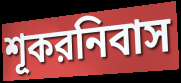
শূকরনিবাস